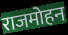
राजमोहन